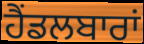
ਹੈਂਡਲਬਾਰਾਂ